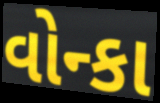
વોન્કા